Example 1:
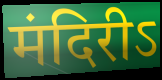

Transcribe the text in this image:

मंदिरीऽ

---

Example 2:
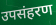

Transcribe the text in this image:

उपसंहरण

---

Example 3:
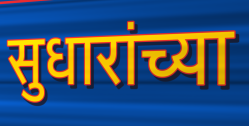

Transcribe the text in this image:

सुधारांच्या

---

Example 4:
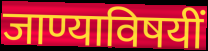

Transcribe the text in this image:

जाण्याविषयीं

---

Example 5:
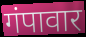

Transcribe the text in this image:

गंपावार